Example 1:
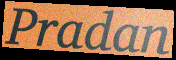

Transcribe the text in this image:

Pradan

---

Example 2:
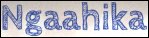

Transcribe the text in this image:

Ngaahika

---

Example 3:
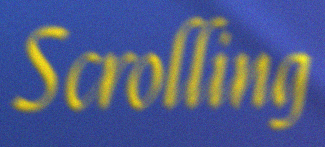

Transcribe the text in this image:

Scrolling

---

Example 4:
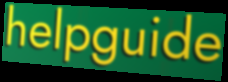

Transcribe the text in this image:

helpguide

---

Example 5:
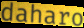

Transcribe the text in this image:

daharo